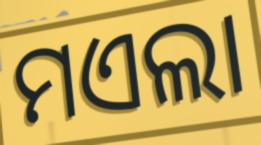
ମଏଲା